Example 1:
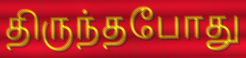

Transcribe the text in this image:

திருந்தபோது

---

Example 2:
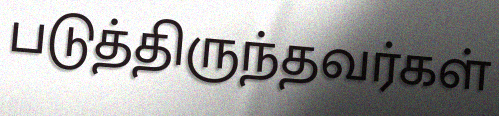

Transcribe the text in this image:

படுத்திருந்தவர்கள்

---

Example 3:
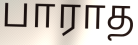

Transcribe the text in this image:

பாராத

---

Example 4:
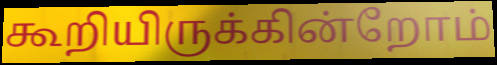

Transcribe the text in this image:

கூறியிருக்கின்றோம்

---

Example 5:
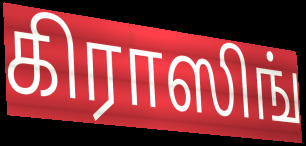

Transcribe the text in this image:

கிராஸிங்